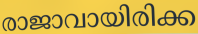
രാജാവായിരിക്ക